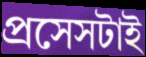
প্রসেসটাই